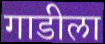
गाडीला